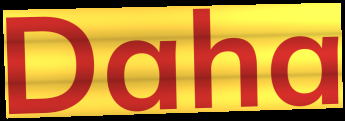
Daha